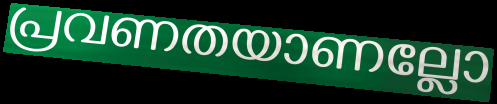
പ്രവണതയാണല്ലോ